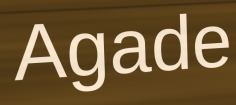
Agade